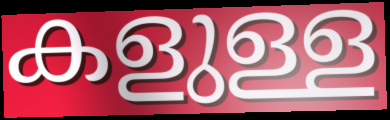
കളുള്ള